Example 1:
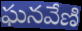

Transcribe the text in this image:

ఘనవేణి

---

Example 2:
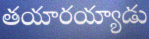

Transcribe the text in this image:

తయారయ్యాడు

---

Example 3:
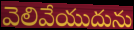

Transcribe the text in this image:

వెలివేయుదును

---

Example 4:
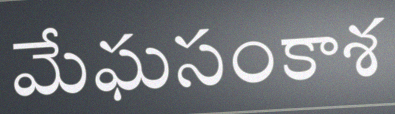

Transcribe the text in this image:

మేఘసంకాశ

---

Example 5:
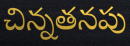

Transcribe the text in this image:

చిన్నతనపు